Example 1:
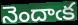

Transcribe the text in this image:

నెందాఁక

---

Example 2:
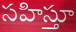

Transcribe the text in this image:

సహిస్తూ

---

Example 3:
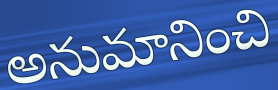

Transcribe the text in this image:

అనుమానించి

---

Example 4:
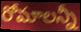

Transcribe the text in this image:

రోమాలన్నీ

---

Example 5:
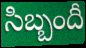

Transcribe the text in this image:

సిబ్బందీ